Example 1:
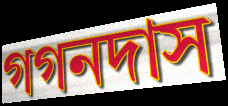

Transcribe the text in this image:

গগনদাস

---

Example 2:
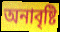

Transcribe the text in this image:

অনাবৃষ্টি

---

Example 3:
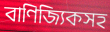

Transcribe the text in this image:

বাণিজ্যিকসহ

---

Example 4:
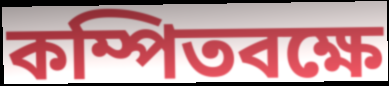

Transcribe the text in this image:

কম্পিতবক্ষে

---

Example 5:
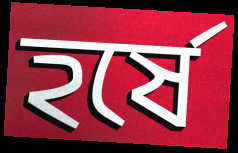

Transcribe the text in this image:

হর্ষে